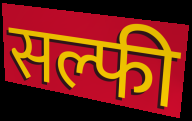
सल्फी